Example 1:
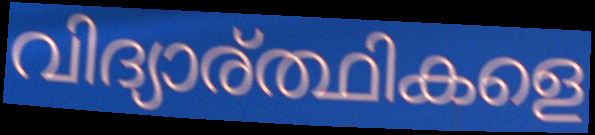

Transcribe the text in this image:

വിദ്യാര്ത്ഥികളെ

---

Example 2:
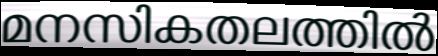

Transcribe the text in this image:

മനസികതലത്തിൽ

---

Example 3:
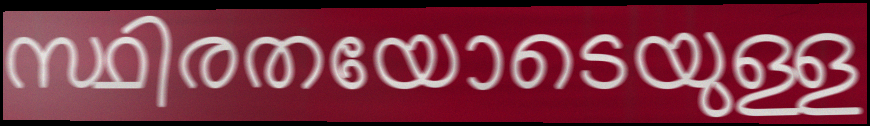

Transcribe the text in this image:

സ്ഥിരതയോടെയുള്ള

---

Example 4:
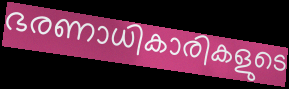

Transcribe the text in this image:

ഭരണാധികാരികളുടെ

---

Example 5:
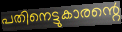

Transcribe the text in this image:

പതിനെട്ടുകാരന്റെ